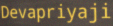
Devapriyaji